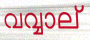
വവ്വാല്